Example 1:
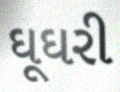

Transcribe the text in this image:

ઘૂઘરી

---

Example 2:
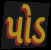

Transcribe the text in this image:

પોડ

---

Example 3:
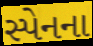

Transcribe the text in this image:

સ્પેનના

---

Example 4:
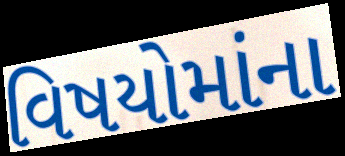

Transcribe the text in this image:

વિષયોમાંના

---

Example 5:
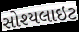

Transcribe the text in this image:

સોશ્યલાઇટ